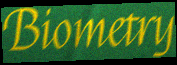
Biometry